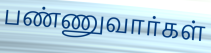
பண்ணுவார்கள்